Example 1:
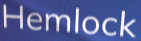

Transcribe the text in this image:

Hemlock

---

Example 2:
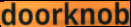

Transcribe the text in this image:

doorknob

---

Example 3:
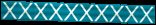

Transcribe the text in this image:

XXXXXXXXXX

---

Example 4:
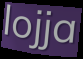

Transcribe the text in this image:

lojja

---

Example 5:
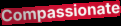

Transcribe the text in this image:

Compassionate